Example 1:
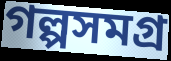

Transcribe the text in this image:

গল্পসমগ্র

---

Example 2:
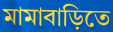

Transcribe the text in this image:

মামাবাড়িতে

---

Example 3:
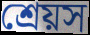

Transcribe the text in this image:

শ্রেয়স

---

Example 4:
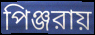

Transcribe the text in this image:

পিঞ্জরায়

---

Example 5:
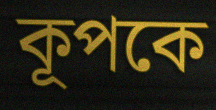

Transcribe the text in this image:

কূপকে